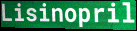
Lisinopril